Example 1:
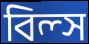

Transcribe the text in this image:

বিল্স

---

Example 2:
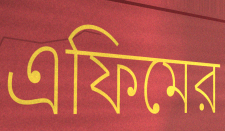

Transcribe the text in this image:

এফিমের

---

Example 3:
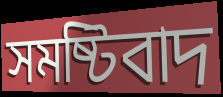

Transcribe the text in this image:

সমষ্টিবাদ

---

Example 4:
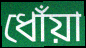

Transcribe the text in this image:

ধোঁয়া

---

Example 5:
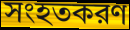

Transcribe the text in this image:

সংহতকরণ